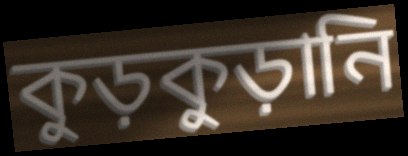
কুড়কুড়ানি